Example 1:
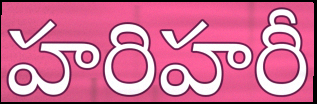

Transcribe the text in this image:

హరిహరీ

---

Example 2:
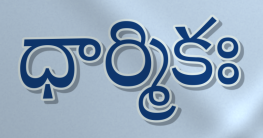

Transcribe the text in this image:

ధార్మికః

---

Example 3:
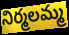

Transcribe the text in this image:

నిర్మలమ్మ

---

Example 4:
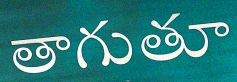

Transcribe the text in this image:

తాగుతూ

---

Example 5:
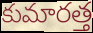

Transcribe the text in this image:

కుమారత్త